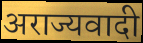
अराज्यवादी